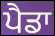
ਪੈਡਾ